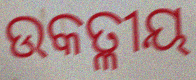
ଉକତ୍ଳୀୟ